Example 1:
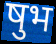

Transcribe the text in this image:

षुभ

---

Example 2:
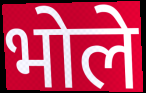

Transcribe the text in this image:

भोले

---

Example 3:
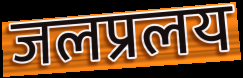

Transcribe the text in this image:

जलप्रलय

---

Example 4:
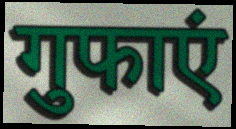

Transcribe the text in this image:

गुफाएं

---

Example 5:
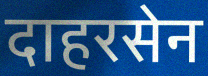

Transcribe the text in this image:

दाहरसेन